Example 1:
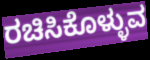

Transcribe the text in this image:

ರಚಿಸಿಕೊಳ್ಳುವ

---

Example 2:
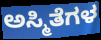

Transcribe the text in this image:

ಅಸ್ಮಿತೆಗಳ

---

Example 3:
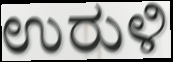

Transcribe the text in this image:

ಉರುಳಿ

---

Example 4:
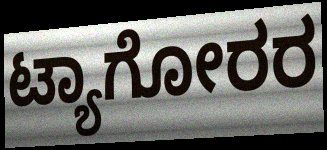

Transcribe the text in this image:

ಟ್ಯಾಗೋರರ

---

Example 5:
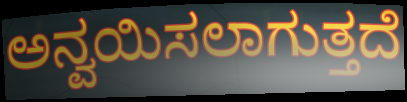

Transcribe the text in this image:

ಅನ್ವಯಿಸಲಾಗುತ್ತದೆ